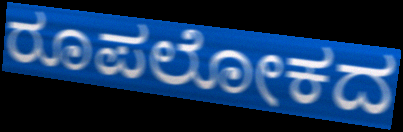
ರೂಪಲೋಕದ